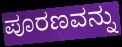
ಪೂರಣವನ್ನು